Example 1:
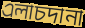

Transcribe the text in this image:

এলাচদানা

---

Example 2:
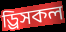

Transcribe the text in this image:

ড্রিসকল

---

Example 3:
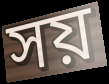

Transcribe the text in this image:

সয়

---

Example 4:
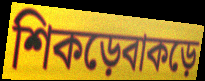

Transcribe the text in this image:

শিকড়েবাকড়ে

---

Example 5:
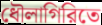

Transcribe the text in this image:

ধৌলাগিরিতে